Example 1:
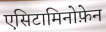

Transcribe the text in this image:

एसिटामिनोफ़ेन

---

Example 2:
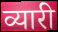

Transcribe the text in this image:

व्यारी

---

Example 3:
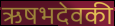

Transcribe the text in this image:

ऋषभदेवकी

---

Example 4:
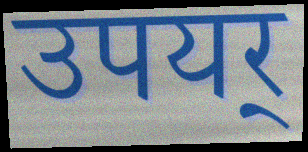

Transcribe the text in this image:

उपयर्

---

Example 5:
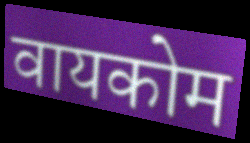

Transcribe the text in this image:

वायकोम